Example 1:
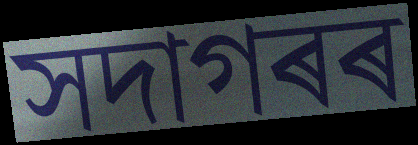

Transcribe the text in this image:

সদাগৰৰ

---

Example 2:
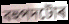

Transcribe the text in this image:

বহুপদটোৰ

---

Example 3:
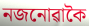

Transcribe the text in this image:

নজনোৱাকৈ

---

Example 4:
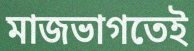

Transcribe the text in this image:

মাজভাগতেই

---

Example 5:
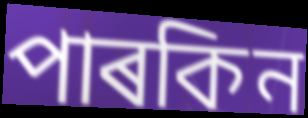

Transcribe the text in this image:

পাৰকিন